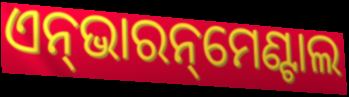
ଏନ୍‌ଭାରନ୍‌ମେଣ୍ଟାଲ